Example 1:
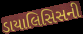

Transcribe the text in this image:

ડાયાલિસિસની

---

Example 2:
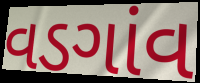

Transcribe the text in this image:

વડગાંવ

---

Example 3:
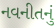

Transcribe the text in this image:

નવનીતનું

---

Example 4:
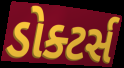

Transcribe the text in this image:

ડોક્ટર્સ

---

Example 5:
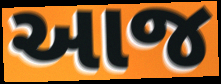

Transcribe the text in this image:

આજ